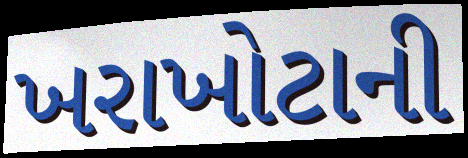
ખરાખોટાની